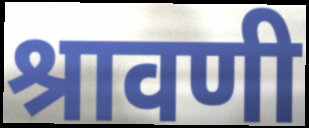
श्रावणी